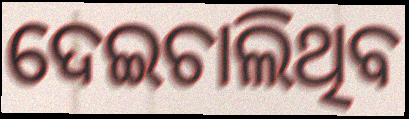
ଦେଇଚାଲିଥିବ